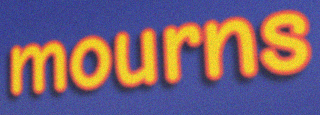
mourns